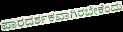
ಪಾರದರ್ಶಕವಾಗಿರಬೇಕೆಂದು